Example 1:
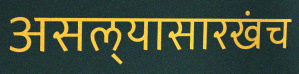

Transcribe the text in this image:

असल्यासारखंच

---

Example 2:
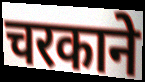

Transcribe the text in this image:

चरकाने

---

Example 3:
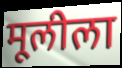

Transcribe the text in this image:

मूलीला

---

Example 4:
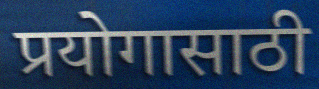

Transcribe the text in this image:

प्रयोगासाठी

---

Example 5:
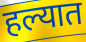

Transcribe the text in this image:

हल्यात